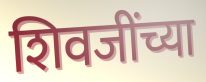
शिवजींच्या